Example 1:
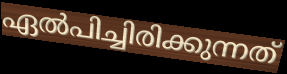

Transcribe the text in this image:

ഏൽപിച്ചിരിക്കുന്നത്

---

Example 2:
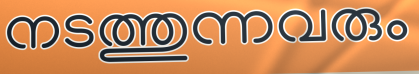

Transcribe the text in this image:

നടത്തുന്നവരും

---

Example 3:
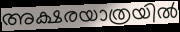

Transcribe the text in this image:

അക്ഷരയാത്രയിൽ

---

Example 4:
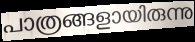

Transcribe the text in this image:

പാത്രങ്ങളായിരുന്നു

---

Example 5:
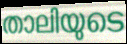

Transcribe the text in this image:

താലിയുടെ